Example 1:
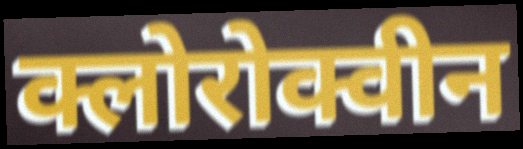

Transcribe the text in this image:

क्लोरोक्वीन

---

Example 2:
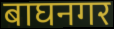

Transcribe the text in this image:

बाघनगर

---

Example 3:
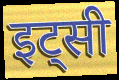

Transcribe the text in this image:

इट्सी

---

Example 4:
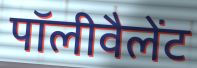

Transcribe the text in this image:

पॉलीवैलेंट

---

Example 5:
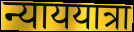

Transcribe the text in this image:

न्याययात्रा